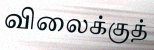
விலைக்குத்